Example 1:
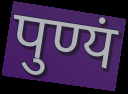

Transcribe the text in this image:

पुण्यं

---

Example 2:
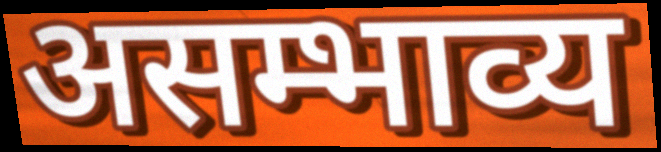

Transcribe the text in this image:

असम्भाव्य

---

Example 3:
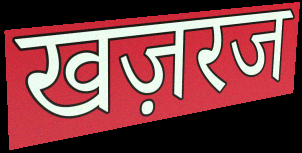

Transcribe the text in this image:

खज़रज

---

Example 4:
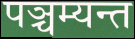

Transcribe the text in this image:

पञ्चम्यन्त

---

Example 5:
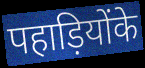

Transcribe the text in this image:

पहाड़ियोंके